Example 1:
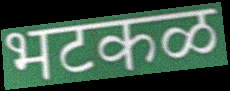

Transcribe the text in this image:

भटकळ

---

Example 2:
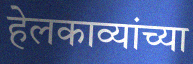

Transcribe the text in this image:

हेलकाव्यांच्या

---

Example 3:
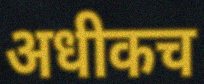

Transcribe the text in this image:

अधीकच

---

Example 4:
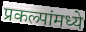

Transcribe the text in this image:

प्रकल्पांमध्ये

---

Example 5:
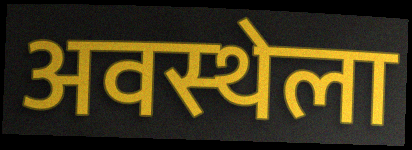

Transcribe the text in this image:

अवस्थेला